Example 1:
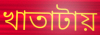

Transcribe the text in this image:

খাতাটায়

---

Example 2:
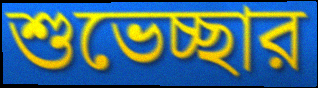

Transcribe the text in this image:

শুভেচ্ছার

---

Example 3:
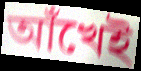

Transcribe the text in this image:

আঁখেই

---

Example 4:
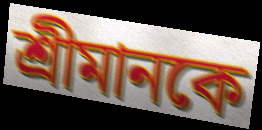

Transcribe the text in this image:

শ্রীমানকে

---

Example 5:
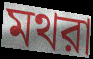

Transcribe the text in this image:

মথরা